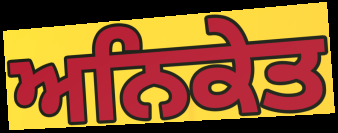
ਅਨਿਕੇਤ